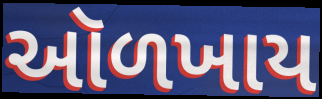
ઑળખાય